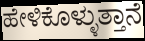
ಹೇಳಿಕೊಳ್ಳುತ್ತಾನೆ